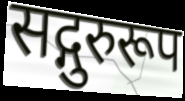
सद्गुरुरूप